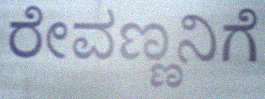
ರೇವಣ್ಣನಿಗೆ